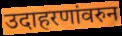
उदाहरणांवरुन